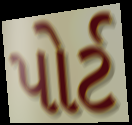
પોર્ટ